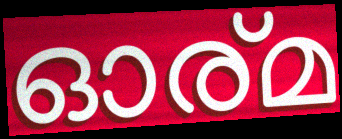
ഓര്മ